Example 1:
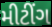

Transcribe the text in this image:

મીટીંગ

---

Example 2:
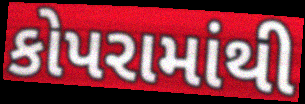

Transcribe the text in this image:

કોપરામાંથી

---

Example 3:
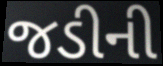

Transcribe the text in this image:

જડીની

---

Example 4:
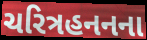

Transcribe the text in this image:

ચરિત્રહનનના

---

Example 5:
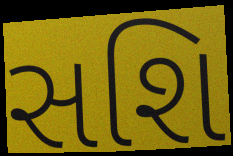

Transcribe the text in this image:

સશિ